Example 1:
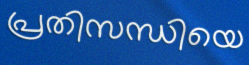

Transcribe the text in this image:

പ്രതിസന്ധിയെ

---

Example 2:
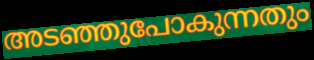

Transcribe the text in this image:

അടഞ്ഞുപോകുന്നതും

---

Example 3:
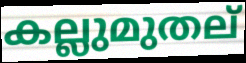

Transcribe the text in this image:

കല്ലുമുതല്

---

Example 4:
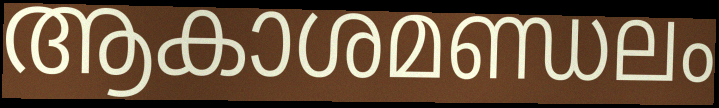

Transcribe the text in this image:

ആകാശമണ്ഡലം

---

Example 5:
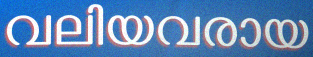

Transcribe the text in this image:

വലിയവരായ